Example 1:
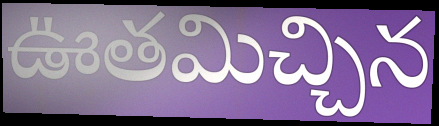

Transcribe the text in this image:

ఊతమిచ్చిన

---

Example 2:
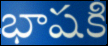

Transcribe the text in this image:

భాషకి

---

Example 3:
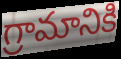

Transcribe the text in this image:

గ్రామానికి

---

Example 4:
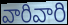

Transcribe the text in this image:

వారివారి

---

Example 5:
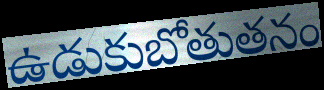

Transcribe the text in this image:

ఉడుకుబోతుతనం